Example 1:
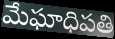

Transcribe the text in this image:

మేఘాధిపతి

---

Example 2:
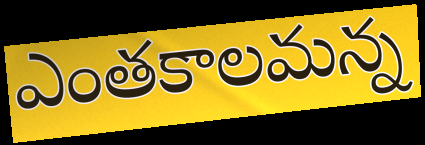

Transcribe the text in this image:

ఎంతకాలమన్న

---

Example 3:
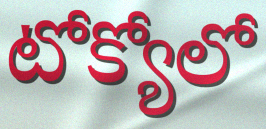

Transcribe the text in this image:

టోక్యోలో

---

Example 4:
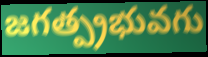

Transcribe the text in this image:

జగత్ప్రభువగు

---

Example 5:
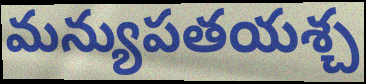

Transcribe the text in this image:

మన్యుపతయశ్చ